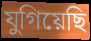
যুগিয়েছি